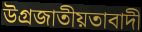
উগ্রজাতীয়তাবাদী